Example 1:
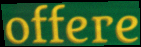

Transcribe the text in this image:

offere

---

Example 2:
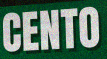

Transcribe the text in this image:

CENTO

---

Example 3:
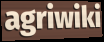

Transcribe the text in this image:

agriwiki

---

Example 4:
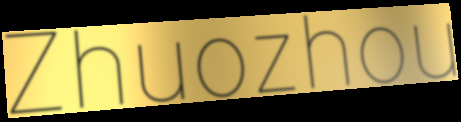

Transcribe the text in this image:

Zhuozhou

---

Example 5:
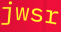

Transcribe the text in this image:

jwsr